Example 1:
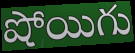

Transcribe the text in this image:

షోయిగు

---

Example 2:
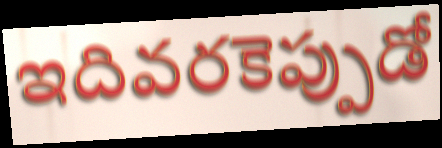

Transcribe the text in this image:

ఇదివరకెప్పుడో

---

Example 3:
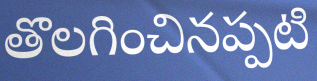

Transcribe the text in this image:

తొలగించినప్పటి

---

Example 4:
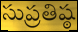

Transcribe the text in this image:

సుప్రతిష్ఠ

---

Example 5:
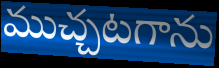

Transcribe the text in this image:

ముచ్చటగాను